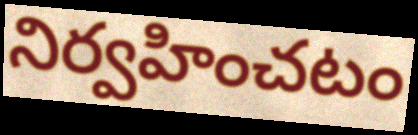
నిర్వహించటం